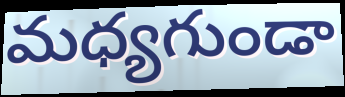
మధ్యగుండా